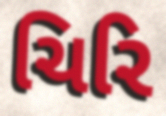
ચિરિ